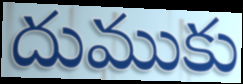
దుముకు